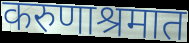
करुणाश्रमात